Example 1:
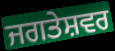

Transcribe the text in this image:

ਜਗਤੇਸ਼ਵਰ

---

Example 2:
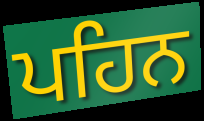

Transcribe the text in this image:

ਪਹਿਨ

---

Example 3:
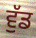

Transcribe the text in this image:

ਵੁੱਡ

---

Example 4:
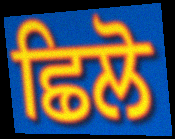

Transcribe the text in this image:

ਛਿਲੋ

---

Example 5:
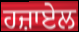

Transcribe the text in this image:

ਹਜ਼ਾਏਲ